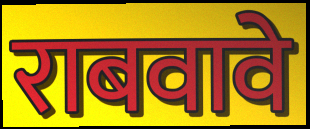
राबवावे